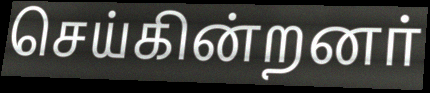
செய்கின்றனர்